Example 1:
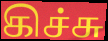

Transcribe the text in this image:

கிச்சு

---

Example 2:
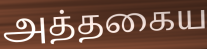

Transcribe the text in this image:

அத்தகைய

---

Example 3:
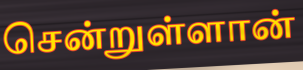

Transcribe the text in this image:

சென்றுள்ளான்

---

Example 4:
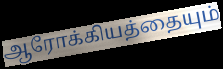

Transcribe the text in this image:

ஆரோக்கியத்தையும்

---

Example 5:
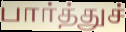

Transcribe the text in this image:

பார்த்துச்